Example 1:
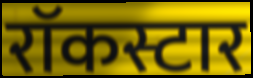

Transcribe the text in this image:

रॉकस्टार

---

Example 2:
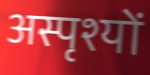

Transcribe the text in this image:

अस्पृश्यों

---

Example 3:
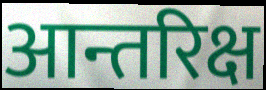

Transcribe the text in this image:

आन्तरिक्ष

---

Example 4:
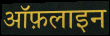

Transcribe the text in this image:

ऑफ़लाइन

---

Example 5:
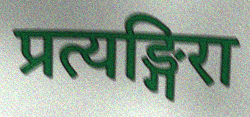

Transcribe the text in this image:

प्रत्यङ्गिरा